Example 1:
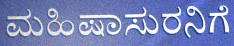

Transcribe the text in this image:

ಮಹಿಷಾಸುರನಿಗೆ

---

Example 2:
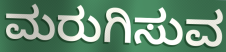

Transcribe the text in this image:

ಮರುಗಿಸುವ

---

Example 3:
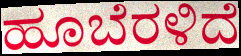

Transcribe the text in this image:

ಹೂಬೆರಳಿದೆ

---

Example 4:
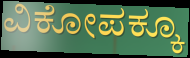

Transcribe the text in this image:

ವಿಕೋಪಕ್ಕೂ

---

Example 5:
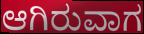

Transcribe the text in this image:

ಆಗಿರುವಾಗ